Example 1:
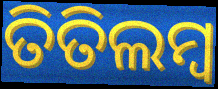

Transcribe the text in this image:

ତିତିଲମ୍ଵ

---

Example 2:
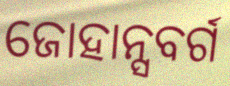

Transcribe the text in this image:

ଜୋହାନ୍ସବର୍ଗ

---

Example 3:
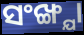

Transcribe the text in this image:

ସଂଙ୍ଖ୍ଯା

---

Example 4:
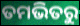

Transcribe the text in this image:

ତମଭିତରୁ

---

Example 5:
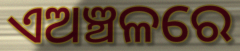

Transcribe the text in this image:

ଏଅଞ୍ଚଳରେ